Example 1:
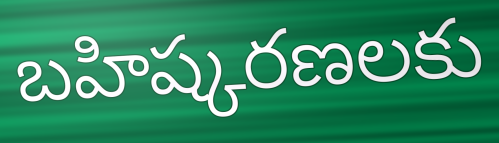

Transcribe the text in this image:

బహిష్కరణలకు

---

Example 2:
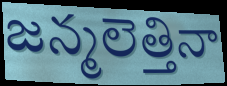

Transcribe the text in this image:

జన్మలెత్తినా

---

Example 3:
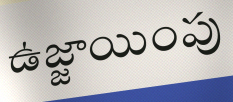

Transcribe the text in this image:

ఉజ్జాయింపు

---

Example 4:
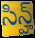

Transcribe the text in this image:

సిన్హ్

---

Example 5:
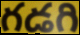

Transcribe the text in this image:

గడగి